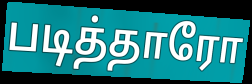
படித்தாரோ